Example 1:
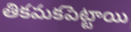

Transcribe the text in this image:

తికమకపెట్టాయి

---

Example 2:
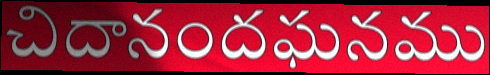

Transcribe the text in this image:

చిదానందఘనము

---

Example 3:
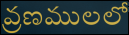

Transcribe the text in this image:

వ్రణములలో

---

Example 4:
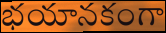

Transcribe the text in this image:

భయానకంగా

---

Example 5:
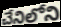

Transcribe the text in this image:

చేనిలోని